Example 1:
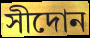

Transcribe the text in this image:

সীদোন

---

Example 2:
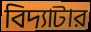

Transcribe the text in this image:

বিদ্যাটার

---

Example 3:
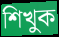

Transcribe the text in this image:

শিখুক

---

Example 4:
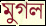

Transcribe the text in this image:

মুগল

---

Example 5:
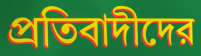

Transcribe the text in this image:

প্রতিবাদীদের